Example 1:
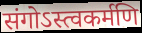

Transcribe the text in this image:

संगोऽस्त्वकर्मणि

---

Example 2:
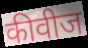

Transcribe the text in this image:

कीवीज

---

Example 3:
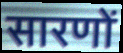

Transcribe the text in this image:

सारणों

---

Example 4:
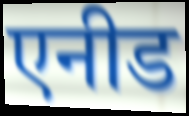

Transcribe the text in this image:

एनीड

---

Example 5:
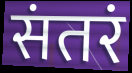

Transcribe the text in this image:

संतरं